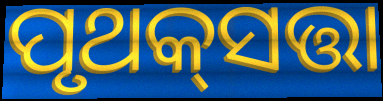
ପୃଥକ୍‌ସତ୍ତା